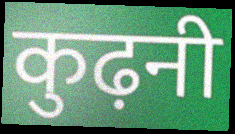
कुढ़नी